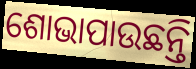
ଶୋଭାପାଉଛନ୍ତି